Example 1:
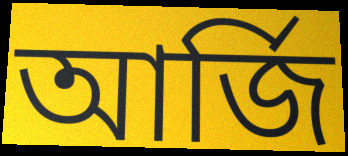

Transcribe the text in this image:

আর্জি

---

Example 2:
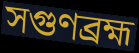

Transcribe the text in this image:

সগুণব্রহ্ম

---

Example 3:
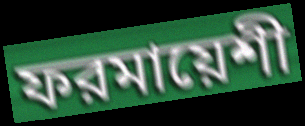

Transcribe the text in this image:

ফরমায়েশী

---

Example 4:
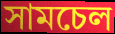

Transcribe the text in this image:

সামচেল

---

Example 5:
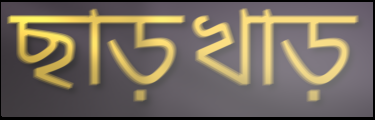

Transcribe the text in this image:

ছাড়খাড়